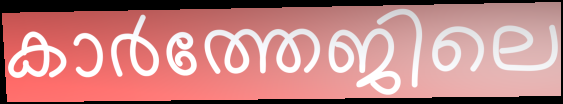
കാർത്തേജിലെ